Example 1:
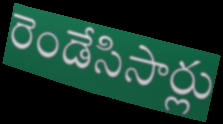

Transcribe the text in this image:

రెండేసిసార్లు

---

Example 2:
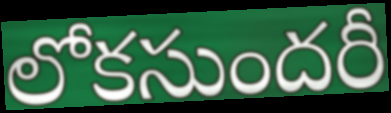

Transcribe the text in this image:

లోకసుందరీ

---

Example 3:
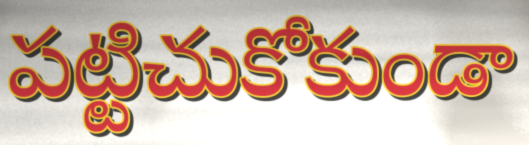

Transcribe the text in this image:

పట్టిచుకోకుండా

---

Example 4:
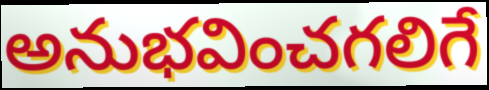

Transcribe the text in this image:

అనుభవించగలిగే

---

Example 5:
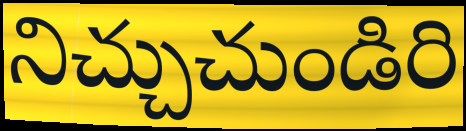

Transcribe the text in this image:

నిచ్చుచుండిరి